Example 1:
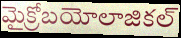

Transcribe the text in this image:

మైక్రోబయోలాజికల్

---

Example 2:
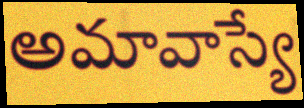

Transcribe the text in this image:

అమావాస్యే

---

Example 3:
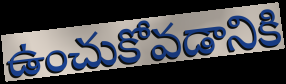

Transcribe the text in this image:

ఉంచుకోవడానికి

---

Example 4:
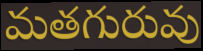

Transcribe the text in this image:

మతగురువు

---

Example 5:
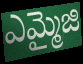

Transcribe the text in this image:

ఎమ్మైజి